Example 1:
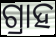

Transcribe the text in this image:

ଗ୍ରାହ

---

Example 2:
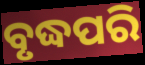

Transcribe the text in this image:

ବୃଦ୍ଧପରି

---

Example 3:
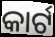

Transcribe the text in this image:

କାର୍ଟ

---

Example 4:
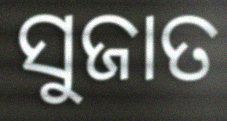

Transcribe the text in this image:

ସୁଜାତ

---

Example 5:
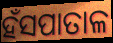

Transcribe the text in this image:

ହଁସପାତାଳ